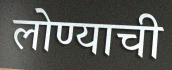
लोण्याची